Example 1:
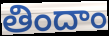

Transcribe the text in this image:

తిందాం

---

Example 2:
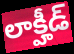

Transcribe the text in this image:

లాక్హీడ్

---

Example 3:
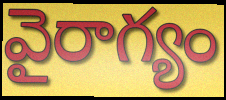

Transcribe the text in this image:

వైరాగ్యం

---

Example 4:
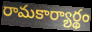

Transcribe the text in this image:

రామకార్యార్థం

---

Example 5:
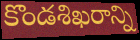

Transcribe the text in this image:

కొండశిఖరాన్ని